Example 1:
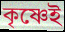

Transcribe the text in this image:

কৃষ্ণেই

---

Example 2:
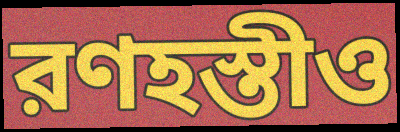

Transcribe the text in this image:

রণহস্তীও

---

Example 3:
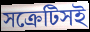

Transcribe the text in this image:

সক্রেটিসই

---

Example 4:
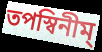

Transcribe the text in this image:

তপস্বিনীম্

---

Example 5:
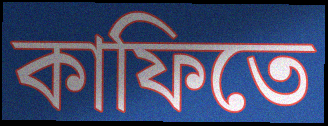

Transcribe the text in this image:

কাফিতে